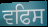
ਵਫਿਸ